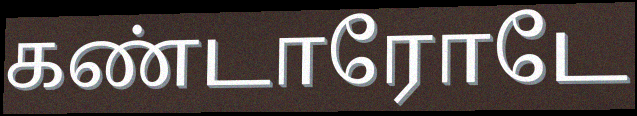
கண்டாரோடே